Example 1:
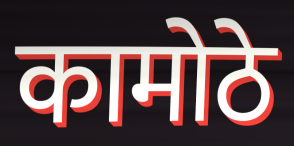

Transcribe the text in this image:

कामोठे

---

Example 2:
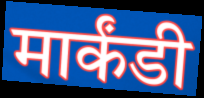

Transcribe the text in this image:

मार्कंडी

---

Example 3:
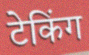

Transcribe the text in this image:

टेकिंग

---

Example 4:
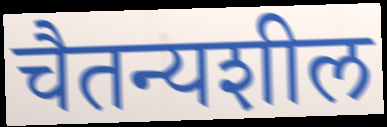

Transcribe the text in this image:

चैतन्यशील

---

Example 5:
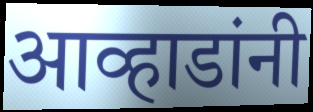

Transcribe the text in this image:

आव्हाडांनी